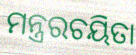
ମନ୍ତ୍ରରଚୟିତା